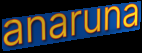
anaruna